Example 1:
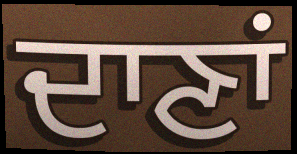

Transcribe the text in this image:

ਦਾਣਾਂ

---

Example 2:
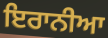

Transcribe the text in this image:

ਇਰਾਨੀਆ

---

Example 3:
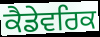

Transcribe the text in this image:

ਕੈਡੇਵਰਿਕ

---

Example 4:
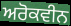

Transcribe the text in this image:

ਅਰੋਕਵੀਨ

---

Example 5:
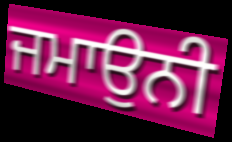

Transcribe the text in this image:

ਜਮਾਉਨੀ